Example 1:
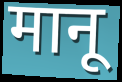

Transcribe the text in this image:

मानू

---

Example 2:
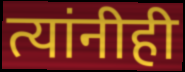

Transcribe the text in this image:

त्यांनीही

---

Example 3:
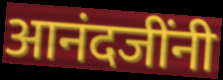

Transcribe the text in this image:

आनंदजींनी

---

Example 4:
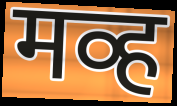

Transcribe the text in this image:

मव्ह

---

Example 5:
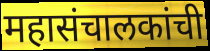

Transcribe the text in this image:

महासंचालकांची